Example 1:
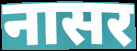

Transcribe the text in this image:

नासर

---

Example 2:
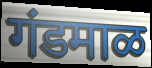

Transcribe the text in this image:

गंडमाळ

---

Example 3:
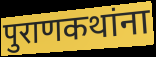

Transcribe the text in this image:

पुराणकथांना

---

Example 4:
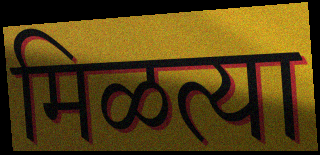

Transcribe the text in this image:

मिळत्या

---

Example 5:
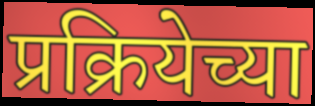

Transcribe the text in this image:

प्रक्रियेच्या